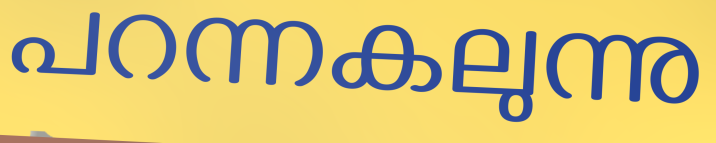
പറന്നകലുന്നു